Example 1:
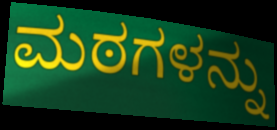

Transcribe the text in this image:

ಮಠಗಳನ್ನು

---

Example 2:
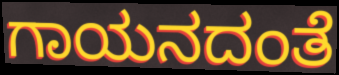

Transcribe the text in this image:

ಗಾಯನದಂತೆ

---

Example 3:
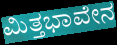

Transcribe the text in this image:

ಮಿತ್ತಭಾವೇನ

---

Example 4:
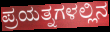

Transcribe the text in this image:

ಪ್ರಯತ್ನಗಳಲ್ಲಿನ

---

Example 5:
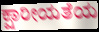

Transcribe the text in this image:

ಕ್ಷಾರೀಯತೆಯ